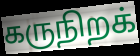
கருநிறக்